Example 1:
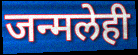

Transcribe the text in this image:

जन्मलेही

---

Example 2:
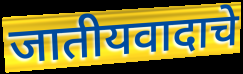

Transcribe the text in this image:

जातीयवादाचे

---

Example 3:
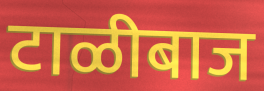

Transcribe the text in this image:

टाळीबाज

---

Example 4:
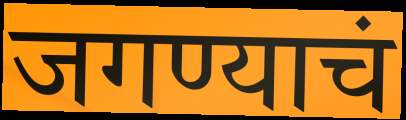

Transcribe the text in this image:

जगण्याचं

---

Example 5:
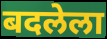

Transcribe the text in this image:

बदलेला